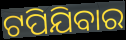
ଟପିଯିବାର